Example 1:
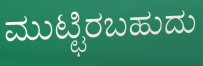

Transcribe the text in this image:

ಮುಟ್ಟಿರಬಹುದು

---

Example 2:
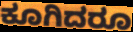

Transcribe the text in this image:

ಕೂಗಿದರೂ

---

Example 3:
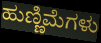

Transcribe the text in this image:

ಹುಣ್ಣಿಮೆಗಳು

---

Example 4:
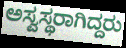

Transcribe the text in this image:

ಅಸ್ವಸ್ಥರಾಗಿದ್ದರು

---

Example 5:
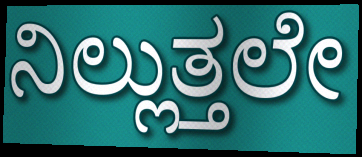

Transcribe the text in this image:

ನಿಲ್ಲುತ್ತಲೇ